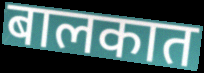
बालकात